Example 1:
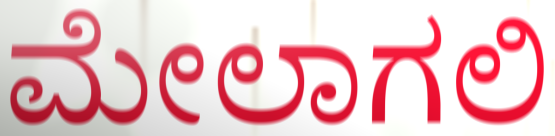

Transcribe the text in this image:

ಮೇಲಾಗಲಿ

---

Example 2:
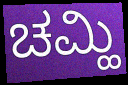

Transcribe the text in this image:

ಚಮ್ಹಿ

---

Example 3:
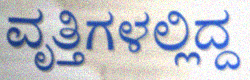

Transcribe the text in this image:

ವೃತ್ತಿಗಳಲ್ಲಿದ್ದ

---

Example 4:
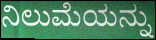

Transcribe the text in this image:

ನಿಲುಮೆಯನ್ನು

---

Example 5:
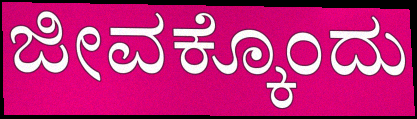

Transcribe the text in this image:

ಜೀವಕ್ಕೊಂದು